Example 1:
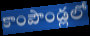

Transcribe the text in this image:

కాంపౌండ్లలో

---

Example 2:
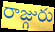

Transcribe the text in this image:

రాజ్గురు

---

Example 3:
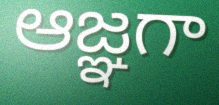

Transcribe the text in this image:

ఆజ్ఞగా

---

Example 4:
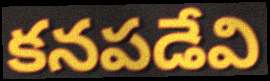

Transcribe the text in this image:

కనపడేవి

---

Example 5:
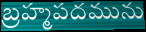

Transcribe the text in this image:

బ్రహ్మపదమును